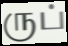
ருப்